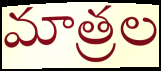
మాత్రల